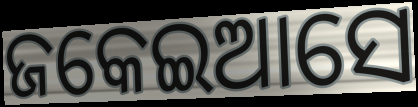
ଜକେଇଆସେ